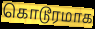
கொடூரமாக